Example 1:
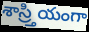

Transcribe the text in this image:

శాస్ర్తియంగా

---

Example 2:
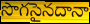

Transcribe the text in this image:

సొగసైనదానా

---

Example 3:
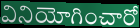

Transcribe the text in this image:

వినియోగించారో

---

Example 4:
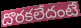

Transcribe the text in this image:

దొరకలేదంటే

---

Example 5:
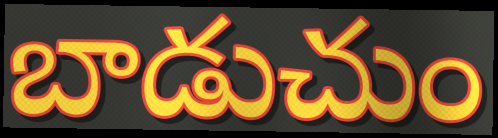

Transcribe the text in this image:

బాడుచుం